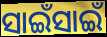
ସାଇଁସାଇଁ